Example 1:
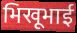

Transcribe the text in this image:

भिखूभाई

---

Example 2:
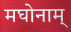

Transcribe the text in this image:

मघोनाम्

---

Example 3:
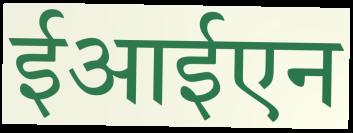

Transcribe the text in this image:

ईआईएन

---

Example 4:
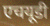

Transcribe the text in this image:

एचयूडी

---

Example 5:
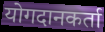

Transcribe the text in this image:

योगदानकर्ता